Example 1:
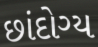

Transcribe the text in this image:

છાંદોગ્ય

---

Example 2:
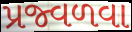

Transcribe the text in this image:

પ્રજ્વળવા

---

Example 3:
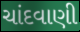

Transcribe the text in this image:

ચાંદવાણી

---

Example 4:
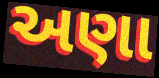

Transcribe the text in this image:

અણા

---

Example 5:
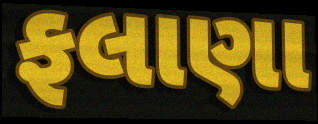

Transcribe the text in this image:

ફલાણા